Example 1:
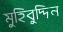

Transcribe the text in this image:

মুহিবুদ্দিন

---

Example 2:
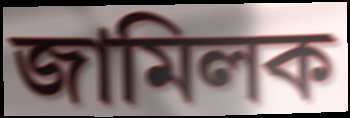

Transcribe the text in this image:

জামিলক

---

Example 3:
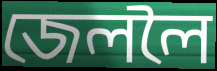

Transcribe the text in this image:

জেললৈ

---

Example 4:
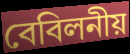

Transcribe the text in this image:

বেবিলনীয়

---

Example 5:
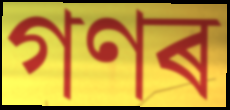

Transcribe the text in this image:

গণৰ